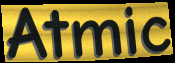
Atmic